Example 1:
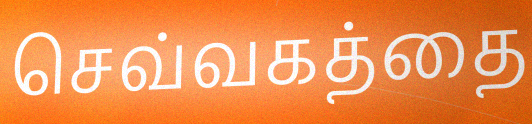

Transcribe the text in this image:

செவ்வகத்தை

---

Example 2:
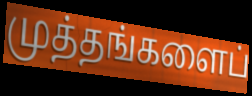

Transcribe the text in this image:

முத்தங்களைப்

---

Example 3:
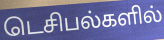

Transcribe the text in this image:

டெசிபல்களில்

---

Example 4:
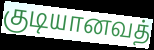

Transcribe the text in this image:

குடியானவத்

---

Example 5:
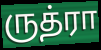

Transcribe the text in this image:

ருத்ரா